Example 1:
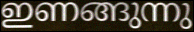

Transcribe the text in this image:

ഇണങ്ങുന്നു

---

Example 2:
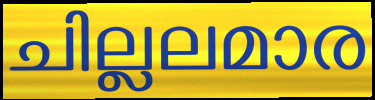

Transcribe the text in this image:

ചില്ലലമാര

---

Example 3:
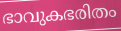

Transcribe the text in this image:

ഭാവുകഭരിതം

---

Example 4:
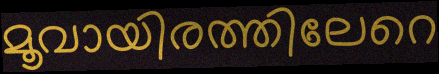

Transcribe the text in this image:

മൂവായിരത്തിലേറെ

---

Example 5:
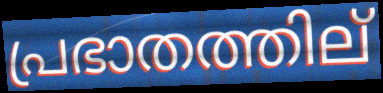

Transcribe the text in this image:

പ്രഭാതത്തില്